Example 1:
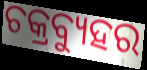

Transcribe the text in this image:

ଚକ୍ରବ୍ୟୁହର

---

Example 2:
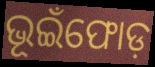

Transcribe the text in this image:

ଭୂଇଁଫୋଡ଼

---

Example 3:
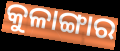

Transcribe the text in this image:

କୁଳାଙ୍ଗାର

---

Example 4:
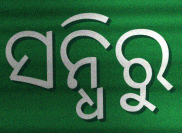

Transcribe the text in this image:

ସନ୍ଧିରୁ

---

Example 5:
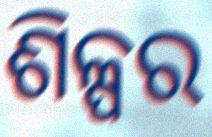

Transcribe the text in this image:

ଶିଳ୍ପର